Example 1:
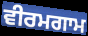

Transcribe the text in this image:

ਵੀਰਮਗਾਮ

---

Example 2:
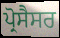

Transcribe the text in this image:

ਪ੍ਰੋਸੈਸਰ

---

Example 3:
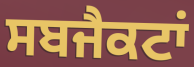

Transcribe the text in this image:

ਸਬਜੈਕਟਾਂ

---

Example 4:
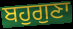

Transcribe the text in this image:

ਬਹੁਗੁਣਾ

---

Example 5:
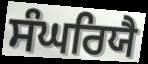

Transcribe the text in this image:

ਸੰਘਰਿਯੈ